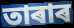
তাৰাৰ